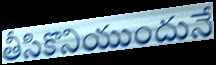
తీసికొనియుందునే